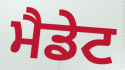
ਮੈਡੇਟ